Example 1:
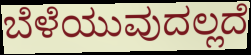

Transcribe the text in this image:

ಬೆಳೆಯುವುದಲ್ಲದೆ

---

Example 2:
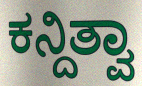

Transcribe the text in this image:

ಕನ್ದಿತ್ವಾ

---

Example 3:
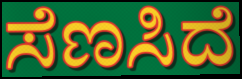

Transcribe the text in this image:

ಸೆಣಸಿದೆ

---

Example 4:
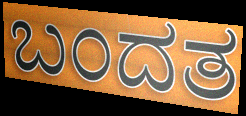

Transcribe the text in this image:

ಬಂದತ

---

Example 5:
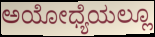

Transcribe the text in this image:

ಅಯೋಧ್ಯೆಯಲ್ಲೂ